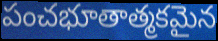
పంచభూతాత్మకమైన